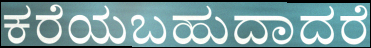
ಕರೆಯಬಹುದಾದರೆ